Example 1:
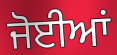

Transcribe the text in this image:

ਜੋਈਆਂ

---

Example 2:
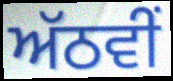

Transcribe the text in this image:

ਅੱਠਵੀਂ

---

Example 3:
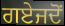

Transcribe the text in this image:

ਗਏਜਦੋਂ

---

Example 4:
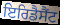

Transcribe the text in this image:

ਇਰਿਡੈਸੈਂਟ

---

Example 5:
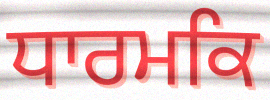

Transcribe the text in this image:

ਧਾਰਮਕਿ